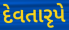
દેવતારૃપે